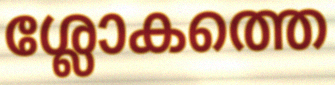
ശ്ലോകത്തെ